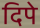
दिपे